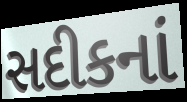
સદીકનાં